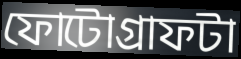
ফোটোগ্রাফটা